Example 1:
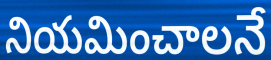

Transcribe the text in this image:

నియమించాలనే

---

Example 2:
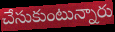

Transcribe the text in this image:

చేసుకుంటున్నారు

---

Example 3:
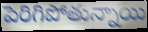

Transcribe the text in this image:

పెరిగిపోతున్నాయి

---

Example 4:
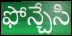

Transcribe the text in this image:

ఫోన్చేసి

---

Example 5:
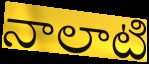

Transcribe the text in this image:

నాలాటి